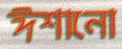
ঈশানো